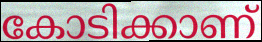
കോടിക്കാണ്